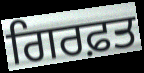
ਗਿਰਫ਼ਤ